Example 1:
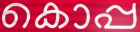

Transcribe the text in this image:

കൊപ്പ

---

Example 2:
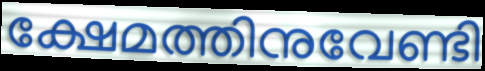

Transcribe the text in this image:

ക്ഷേമത്തിനുവേണ്ടി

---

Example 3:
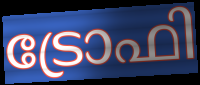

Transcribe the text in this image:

ട്രോഫി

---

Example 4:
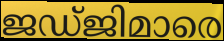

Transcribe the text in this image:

ജഡ്ജിമാരെ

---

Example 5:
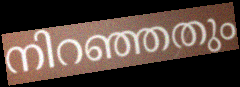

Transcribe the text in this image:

നിറഞ്ഞതും